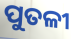
ପୁତଳୀ